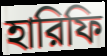
হারিফি